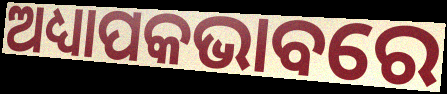
ଅଧ୍ୟାପକଭାବରେ